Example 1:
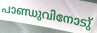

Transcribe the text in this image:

പാണ്ഡുവിനോടു്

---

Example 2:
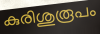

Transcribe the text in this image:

കുരിശുരൂപം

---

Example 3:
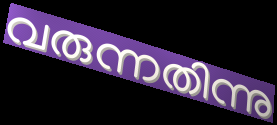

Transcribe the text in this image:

വരുന്നതിന്നു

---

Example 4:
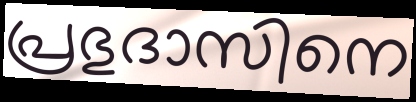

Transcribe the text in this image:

പ്രഭുദാസിനെ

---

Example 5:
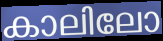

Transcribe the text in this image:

കാലിലോ